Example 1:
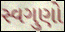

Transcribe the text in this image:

સ્વગુણો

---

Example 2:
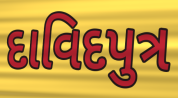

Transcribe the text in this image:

દાવિદપુત્ર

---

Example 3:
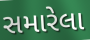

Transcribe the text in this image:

સમારેલા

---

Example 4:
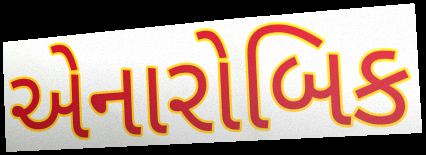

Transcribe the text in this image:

એનારોબિક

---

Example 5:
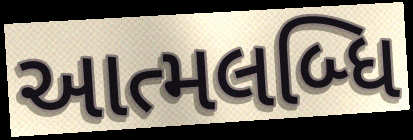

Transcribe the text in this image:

આત્મલબ્ધિ